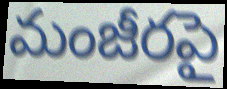
మంజీరపై